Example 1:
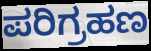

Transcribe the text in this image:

ಪರಿಗ್ರಹಣ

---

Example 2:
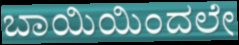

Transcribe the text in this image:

ಬಾಯಿಯಿಂದಲೇ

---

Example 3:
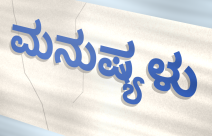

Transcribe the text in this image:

ಮನುಷ್ಯಳು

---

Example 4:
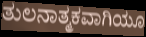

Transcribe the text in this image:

ತುಲನಾತ್ಮಕವಾಗಿಯೂ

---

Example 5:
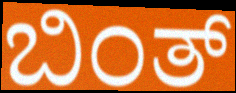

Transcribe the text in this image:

ಬಿಂತ್